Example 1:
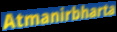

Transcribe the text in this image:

Atmanirbharta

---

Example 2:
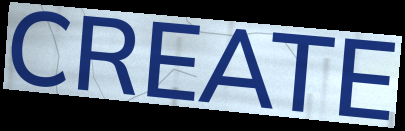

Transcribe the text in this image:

CREATE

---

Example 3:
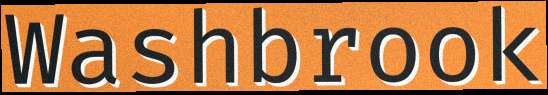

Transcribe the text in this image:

Washbrook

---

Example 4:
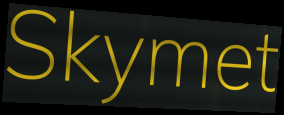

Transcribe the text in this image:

Skymet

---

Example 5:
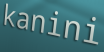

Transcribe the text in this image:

kanini